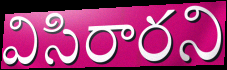
విసిరారని